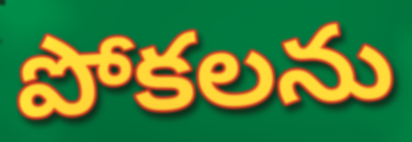
పోకలను